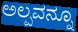
ಅಲ್ಪವನ್ನೂ